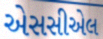
એસસીએલ